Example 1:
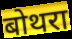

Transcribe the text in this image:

बोथरा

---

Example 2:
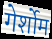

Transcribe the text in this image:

गेर्शोम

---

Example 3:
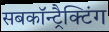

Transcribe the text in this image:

सबकॉन्ट्रैक्टिंग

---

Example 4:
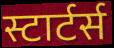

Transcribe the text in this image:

स्टार्टर्स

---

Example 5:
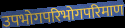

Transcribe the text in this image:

उपभोगपरिभोगपरिमाण